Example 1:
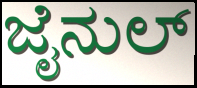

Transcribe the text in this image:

ಜೈನುಲ್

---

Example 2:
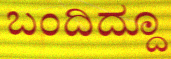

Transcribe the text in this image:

ಬಂದಿದ್ದೂ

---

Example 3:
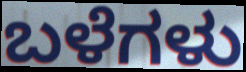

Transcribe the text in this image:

ಬಳೆಗಳು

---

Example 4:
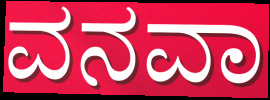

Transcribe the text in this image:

ವನವಾ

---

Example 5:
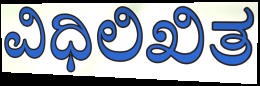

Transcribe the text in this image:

ವಿಧಿಲಿಖಿತ